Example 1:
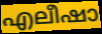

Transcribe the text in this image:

എലീഷാ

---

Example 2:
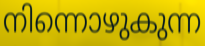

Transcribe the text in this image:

നിന്നൊഴുകുന്ന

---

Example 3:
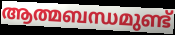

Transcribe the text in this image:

ആത്മബന്ധമുണ്ട്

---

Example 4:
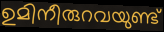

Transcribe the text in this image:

ഉമിനീരുറവയുണ്ട്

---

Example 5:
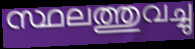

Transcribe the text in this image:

സ്ഥലത്തുവച്ചു